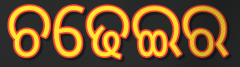
ଚଢେଇର